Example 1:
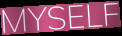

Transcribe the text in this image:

MYSELF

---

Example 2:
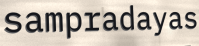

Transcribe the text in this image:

sampradayas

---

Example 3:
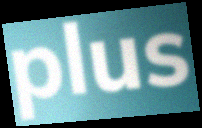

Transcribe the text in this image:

plus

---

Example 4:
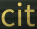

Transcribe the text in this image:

cit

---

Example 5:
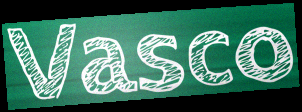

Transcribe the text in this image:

Vasco